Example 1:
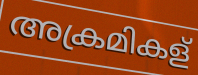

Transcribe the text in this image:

അക്രമികള്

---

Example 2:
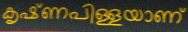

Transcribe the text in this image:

കൃഷ്‌ണപിള്ളയാണ്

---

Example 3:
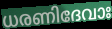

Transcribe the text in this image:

ധരണിദേവാഃ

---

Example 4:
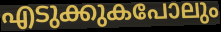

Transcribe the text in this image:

എടുക്കുകപോലും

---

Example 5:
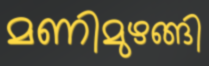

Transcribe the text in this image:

മണിമുഴങ്ങി